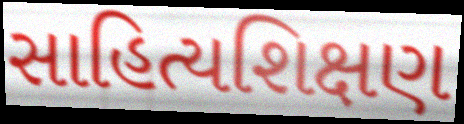
સાહિત્યશિક્ષણ